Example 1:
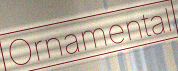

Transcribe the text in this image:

Ornamental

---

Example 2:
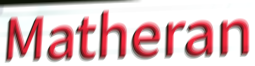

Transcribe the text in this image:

Matheran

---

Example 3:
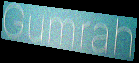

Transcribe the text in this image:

Gumrah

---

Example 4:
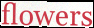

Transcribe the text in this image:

flowers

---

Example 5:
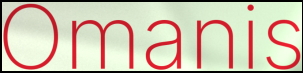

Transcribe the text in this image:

Omanis